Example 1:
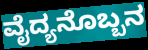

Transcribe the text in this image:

ವೈದ್ಯನೊಬ್ಬನ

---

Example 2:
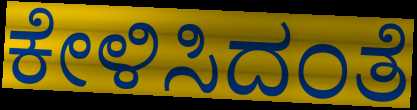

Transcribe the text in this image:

ಕೇಳಿಸಿದಂತೆ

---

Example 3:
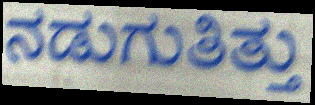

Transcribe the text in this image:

ನಡುಗುತಿತ್ತು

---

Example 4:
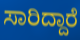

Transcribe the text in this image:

ಸಾರಿದ್ದಾರೆ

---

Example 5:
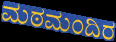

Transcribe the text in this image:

ಮಠಮಂದಿರ